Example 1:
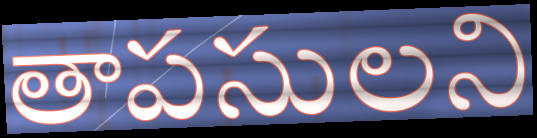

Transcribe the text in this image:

తాపసులని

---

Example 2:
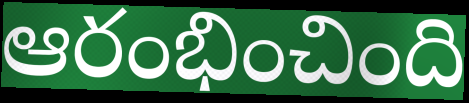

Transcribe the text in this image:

ఆరంభించింది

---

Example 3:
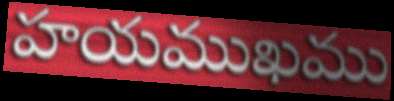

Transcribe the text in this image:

హయముఖము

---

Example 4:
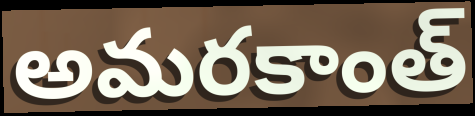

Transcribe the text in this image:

అమరకాంత్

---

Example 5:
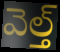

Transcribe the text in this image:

వెల్త్